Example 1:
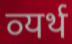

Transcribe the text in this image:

व्‍यर्थ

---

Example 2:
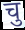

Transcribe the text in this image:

चु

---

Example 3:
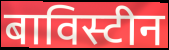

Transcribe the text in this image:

बाविस्टीन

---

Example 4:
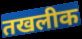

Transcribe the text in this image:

तखलीक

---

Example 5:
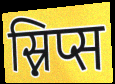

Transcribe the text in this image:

स्निप्स